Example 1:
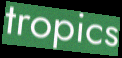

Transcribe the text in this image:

tropics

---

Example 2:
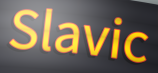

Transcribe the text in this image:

Slavic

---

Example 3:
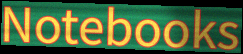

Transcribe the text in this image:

Notebooks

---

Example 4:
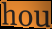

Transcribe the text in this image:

hou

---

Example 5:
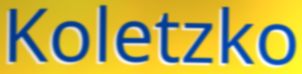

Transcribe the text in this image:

Koletzko